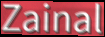
Zainal